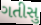
ગતીસુ